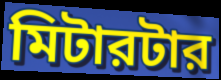
মিটারটার